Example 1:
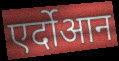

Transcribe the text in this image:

एर्दोआन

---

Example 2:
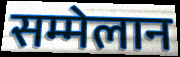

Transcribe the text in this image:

सम्मेलान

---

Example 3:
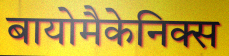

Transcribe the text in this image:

बायोमैकेनिक्स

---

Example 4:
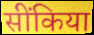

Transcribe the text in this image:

सींकिया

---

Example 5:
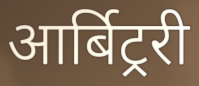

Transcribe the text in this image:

आर्बिट्ररी